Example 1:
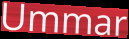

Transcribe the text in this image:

Ummar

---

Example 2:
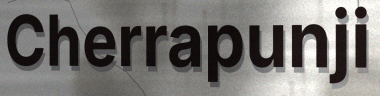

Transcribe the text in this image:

Cherrapunji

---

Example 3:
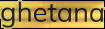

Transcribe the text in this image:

ghetana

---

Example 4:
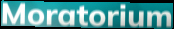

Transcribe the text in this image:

Moratorium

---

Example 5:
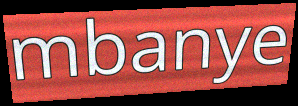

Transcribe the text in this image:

mbanye